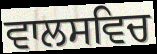
ਵਾਲਸਵਿਚ